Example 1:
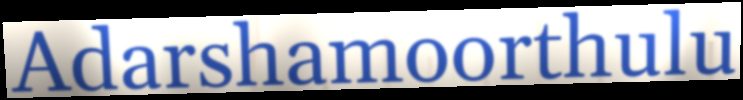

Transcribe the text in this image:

Adarshamoorthulu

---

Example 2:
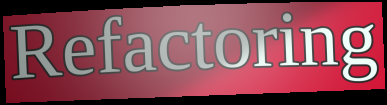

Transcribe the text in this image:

Refactoring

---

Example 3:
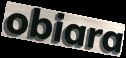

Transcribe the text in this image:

obiara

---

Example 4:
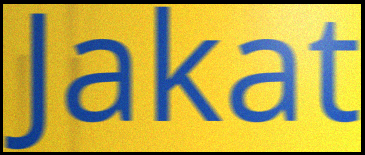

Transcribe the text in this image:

Jakat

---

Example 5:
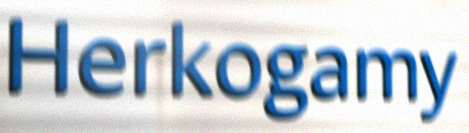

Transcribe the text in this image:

Herkogamy